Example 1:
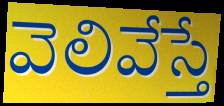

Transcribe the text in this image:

వెలివేస్తే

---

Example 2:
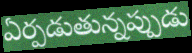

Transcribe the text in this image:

ఏర్పడుతున్నప్పుడు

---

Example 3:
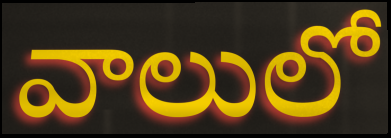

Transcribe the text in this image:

వాలులో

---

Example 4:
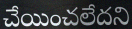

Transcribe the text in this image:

చేయించలేదని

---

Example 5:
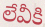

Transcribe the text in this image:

లేవీకి